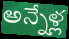
అన్నేళ్ల